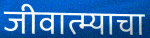
जीवात्म्याचा